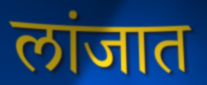
लांजात